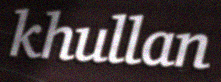
khullan